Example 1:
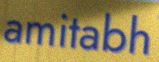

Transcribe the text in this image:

amitabh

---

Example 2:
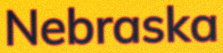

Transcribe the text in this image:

Nebraska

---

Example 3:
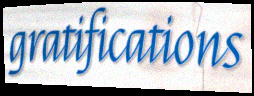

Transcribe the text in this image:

gratifications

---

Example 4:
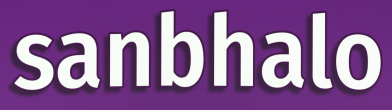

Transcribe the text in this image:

sanbhalo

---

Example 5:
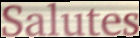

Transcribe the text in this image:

Salutes